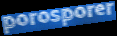
porosporer